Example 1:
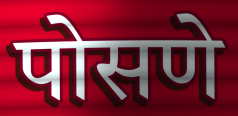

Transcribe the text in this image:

पोसणे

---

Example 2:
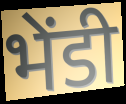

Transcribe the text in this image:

भेंडी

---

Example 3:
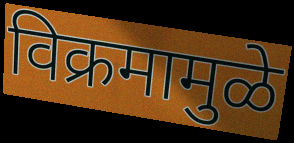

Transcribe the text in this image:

विक्रमामुळे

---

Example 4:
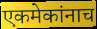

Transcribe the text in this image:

एकमेकांनाच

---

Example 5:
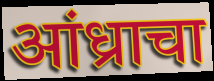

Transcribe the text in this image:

आंध्राचा